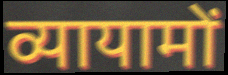
व्यायामों